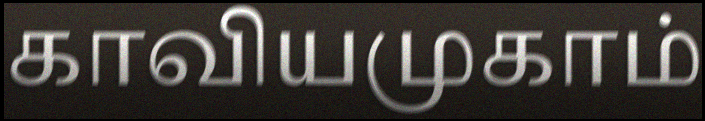
காவியமுகாம்